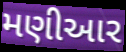
મણીઆર